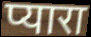
प्यारा